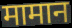
मामान